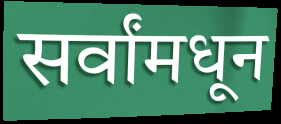
सर्वांमधून